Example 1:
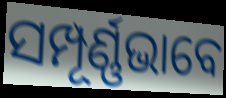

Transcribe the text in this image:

ସମ୍ପୂର୍ଣ୍ଣଭାବେ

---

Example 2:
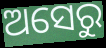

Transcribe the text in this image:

ଅସେରୁ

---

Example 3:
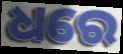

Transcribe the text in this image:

ଧରେ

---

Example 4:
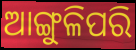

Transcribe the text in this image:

ଆଙ୍ଗୁଳିପରି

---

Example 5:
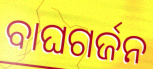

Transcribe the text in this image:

ବାଘଗର୍ଜନ